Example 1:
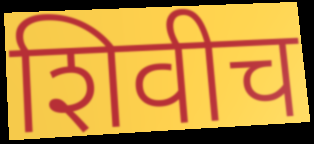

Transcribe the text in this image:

शिवीच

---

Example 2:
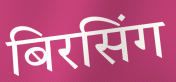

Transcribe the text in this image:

बिरसिंग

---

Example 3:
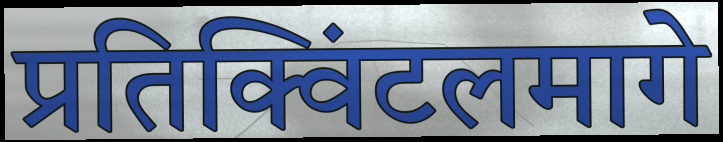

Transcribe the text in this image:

प्रतिक्विंटलमागे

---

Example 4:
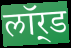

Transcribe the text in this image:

लॉर्ड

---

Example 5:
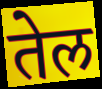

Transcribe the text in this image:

तेल